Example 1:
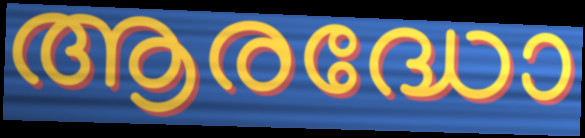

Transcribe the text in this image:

ആരദ്ധോ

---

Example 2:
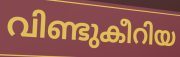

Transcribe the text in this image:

വിണ്ടുകീറിയ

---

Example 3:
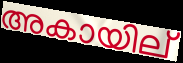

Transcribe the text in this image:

അകായില്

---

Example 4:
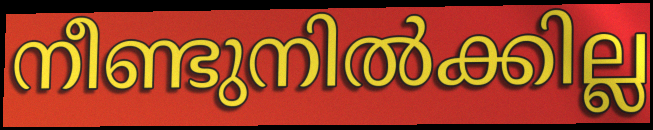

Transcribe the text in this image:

നീണ്ടുനിൽക്കില്ല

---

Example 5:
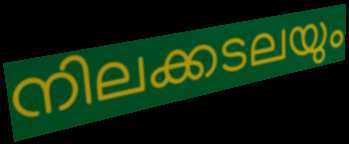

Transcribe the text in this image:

നിലക്കടലയും